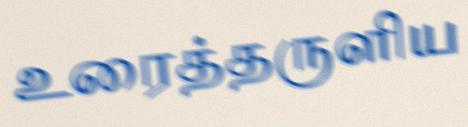
உரைத்தருளிய